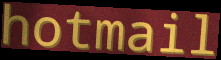
hotmail